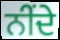
ਨੀਂਦੇ